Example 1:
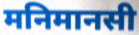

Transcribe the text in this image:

मनिमानसी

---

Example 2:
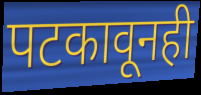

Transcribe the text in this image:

पटकावूनही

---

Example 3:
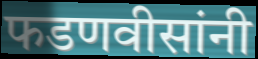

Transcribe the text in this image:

फडणवीसांनी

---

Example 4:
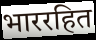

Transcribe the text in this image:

भाररहित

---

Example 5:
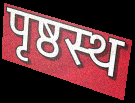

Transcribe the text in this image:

पृष्ठस्थ